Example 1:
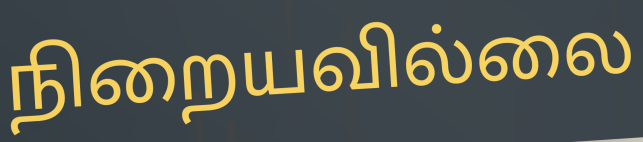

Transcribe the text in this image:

நிறையவில்லை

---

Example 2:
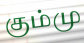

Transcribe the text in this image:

கும்மு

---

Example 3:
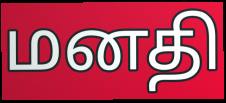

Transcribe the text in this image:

மனதி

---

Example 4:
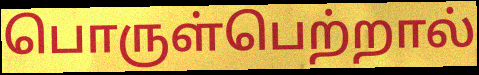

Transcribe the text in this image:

பொருள்பெற்றால்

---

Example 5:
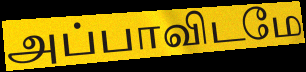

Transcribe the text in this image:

அப்பாவிடமே